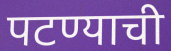
पटण्याची